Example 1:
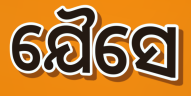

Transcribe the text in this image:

ଯୈସେ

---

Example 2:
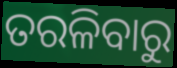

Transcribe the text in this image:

ତରଳିବାରୁ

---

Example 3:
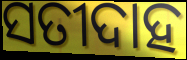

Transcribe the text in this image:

ସତୀଦାହ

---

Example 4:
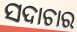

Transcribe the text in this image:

ସଦାଚାର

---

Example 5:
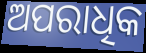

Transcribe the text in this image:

ଅପରାଧିକ